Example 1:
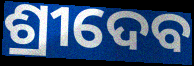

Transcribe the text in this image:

ଶ୍ରୀଦେବ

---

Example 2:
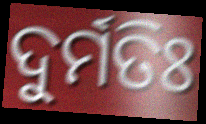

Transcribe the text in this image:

ଦୁର୍ମତିଃ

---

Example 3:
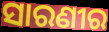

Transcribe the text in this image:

ସାରଣୀର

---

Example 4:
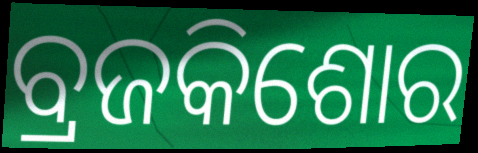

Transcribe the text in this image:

ବ୍ରଜକିଶୋର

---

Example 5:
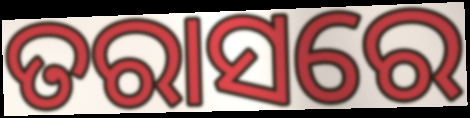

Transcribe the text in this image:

ତରାସରେ